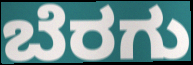
ಬೆರಗು